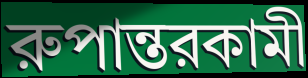
রুপান্তরকামী